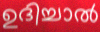
ഉദിച്ചാൽ